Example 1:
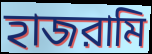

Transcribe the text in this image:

হাজরামি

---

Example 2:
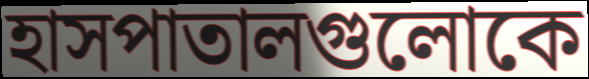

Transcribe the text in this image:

হাসপাতালগুলোকে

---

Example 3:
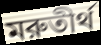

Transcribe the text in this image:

মরুতীর্থ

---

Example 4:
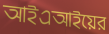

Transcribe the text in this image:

আইএআইয়ের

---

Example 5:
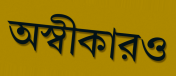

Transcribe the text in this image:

অস্বীকারও